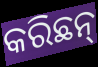
କରିଛନ୍